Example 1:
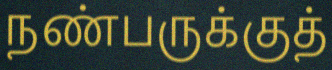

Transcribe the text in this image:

நண்பருக்குத்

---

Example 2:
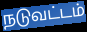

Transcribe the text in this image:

நடுவட்டம்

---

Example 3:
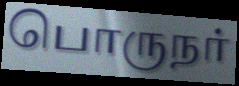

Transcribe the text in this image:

பொருநர்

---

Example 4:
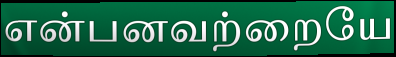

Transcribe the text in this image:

என்பனவற்றையே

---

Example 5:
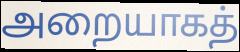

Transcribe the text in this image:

அறையாகத்